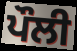
ਪੌਲੀ